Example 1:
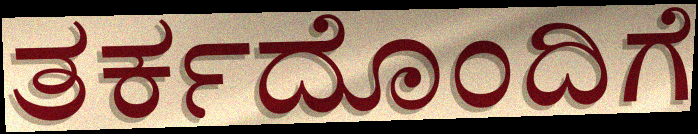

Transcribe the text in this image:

ತರ್ಕದೊಂದಿಗೆ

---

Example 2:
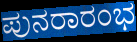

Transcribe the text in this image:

ಪುನರಾರಂಭ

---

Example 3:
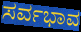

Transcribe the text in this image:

ಸರ್ವಭಾವ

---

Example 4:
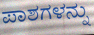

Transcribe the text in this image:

ಪಾಶಗಳನ್ನು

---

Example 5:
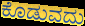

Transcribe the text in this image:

ಕೊಡುವದು